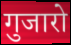
गुजारो